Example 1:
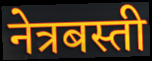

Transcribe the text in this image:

नेत्रबस्ती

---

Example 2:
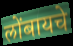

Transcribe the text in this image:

लोंबायचे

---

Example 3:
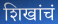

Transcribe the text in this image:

शिखांचं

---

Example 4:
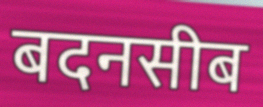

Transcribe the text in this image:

बदनसीब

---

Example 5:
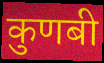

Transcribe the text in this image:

कुणबी